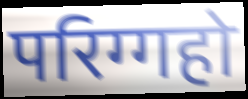
परिग्गहो